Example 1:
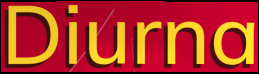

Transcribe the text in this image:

Diurna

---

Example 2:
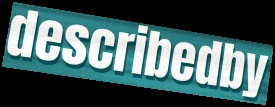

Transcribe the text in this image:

describedby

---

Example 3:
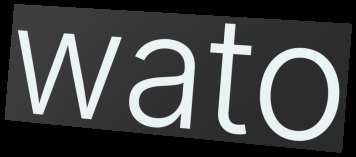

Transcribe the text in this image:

wato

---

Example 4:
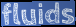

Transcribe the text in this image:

fluids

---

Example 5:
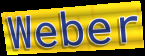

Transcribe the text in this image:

Weber